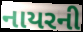
નાયરની